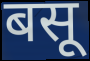
बसू